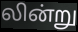
லின்று